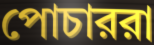
পোচাররা